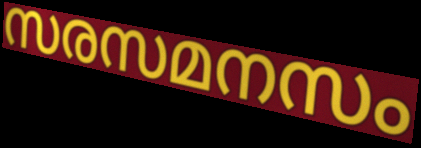
സരസമനസം